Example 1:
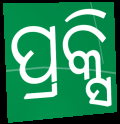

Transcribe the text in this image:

ପ୍ରକ୍ସି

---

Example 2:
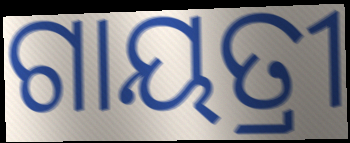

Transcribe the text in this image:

ଗାୟତ୍ରୀ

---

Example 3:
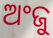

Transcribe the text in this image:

ଅଂଜୁ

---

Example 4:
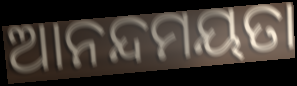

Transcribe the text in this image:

ଆନନ୍ଦମୟତା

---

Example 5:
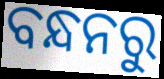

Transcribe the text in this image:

ବନ୍ଧନରୁ